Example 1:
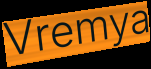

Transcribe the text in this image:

Vremya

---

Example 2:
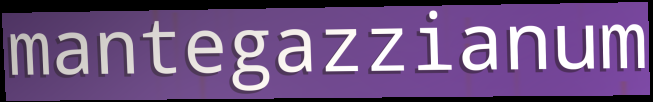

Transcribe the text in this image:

mantegazzianum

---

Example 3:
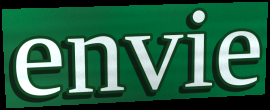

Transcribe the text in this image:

envie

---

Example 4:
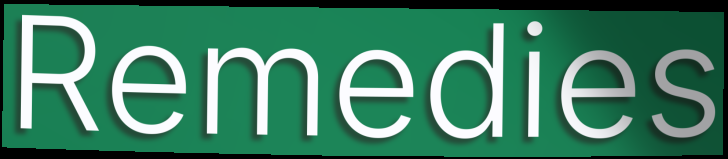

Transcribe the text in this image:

Remedies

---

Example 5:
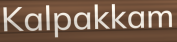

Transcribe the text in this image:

Kalpakkam